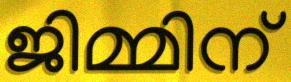
ജിമ്മിന്